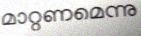
മാറ്റണമെന്നു